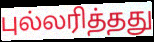
புல்லரித்தது